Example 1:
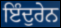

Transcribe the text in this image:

ਇੰਦੁਰੇਨ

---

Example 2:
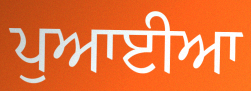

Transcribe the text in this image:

ਪੁਆਈਆ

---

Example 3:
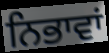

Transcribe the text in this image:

ਨਿਭਾਵਾਂ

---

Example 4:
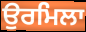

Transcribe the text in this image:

ਉਰਮਿਲਾ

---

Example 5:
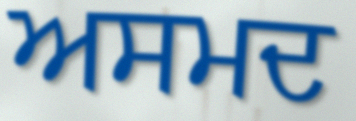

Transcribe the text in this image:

ਅਸਮਦ